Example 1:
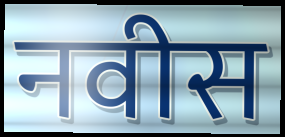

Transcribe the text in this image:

नवीस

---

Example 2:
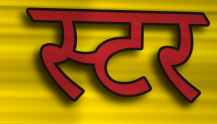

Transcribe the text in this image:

स्टर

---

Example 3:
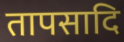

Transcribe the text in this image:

तापसादि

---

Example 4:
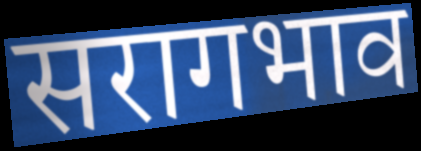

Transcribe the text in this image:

सरागभाव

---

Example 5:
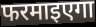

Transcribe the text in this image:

फरमाइएगा